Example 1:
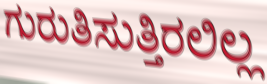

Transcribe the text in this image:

ಗುರುತಿಸುತ್ತಿರಲಿಲ್ಲ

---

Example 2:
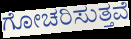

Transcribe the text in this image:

ಗೋಚರಿಸುತ್ತವೆ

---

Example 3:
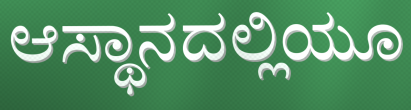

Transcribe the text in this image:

ಆಸ್ಥಾನದಲ್ಲಿಯೂ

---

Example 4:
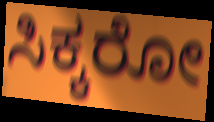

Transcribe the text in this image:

ಸಿಕ್ಕರೋ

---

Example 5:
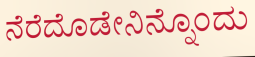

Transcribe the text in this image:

ನೆರೆದೊಡೇನಿನ್ನೊಂದು